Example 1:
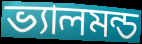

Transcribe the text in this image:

ভ্যালমন্ড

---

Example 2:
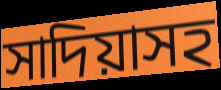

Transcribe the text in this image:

সাদিয়াসহ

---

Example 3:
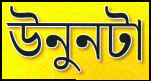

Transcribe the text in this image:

উনুনটা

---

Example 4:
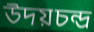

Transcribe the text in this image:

উদয়চন্দ্র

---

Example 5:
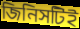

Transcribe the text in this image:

জিনিসটিই